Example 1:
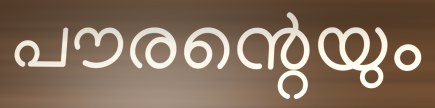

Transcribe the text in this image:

പൗരന്റെയും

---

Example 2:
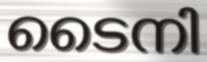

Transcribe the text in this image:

ടൈനി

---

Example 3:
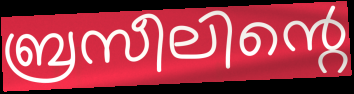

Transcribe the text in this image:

ബ്രസീലിന്റെ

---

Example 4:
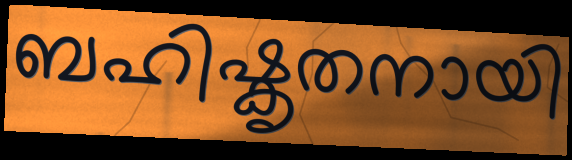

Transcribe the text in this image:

ബഹിഷ്കൃതനായി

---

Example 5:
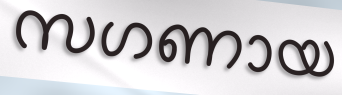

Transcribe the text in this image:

സഗണായ